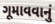
ગૂમાવવાનું